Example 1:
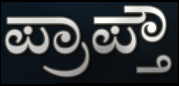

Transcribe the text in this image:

ಪ್ರಾಪ್ತೌ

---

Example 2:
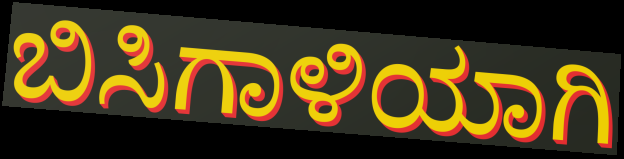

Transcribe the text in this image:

ಬಿಸಿಗಾಳಿಯಾಗಿ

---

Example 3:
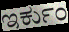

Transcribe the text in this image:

ಇರ್ಕುಂ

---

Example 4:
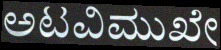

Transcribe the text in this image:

ಅಟವಿಮುಖೇ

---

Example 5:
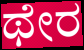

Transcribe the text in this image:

ಥೇರ